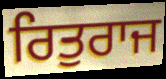
ਰਿਤੁਰਾਜ